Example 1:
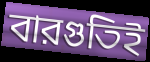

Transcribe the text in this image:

বারগুতিই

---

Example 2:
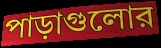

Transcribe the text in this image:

পাড়াগুলোর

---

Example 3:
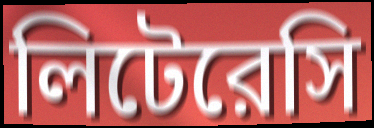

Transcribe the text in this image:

লিটেরেসি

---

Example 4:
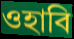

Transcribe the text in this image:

ওহাবি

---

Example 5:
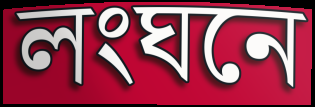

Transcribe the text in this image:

লংঘনে